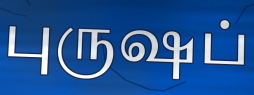
புருஷப்